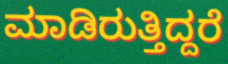
ಮಾಡಿರುತ್ತಿದ್ದರೆ